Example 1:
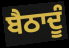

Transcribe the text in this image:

ਬੈਠਾਦੂੰ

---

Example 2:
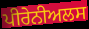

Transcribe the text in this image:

ਪੀਰੇਨੀਅਲਸ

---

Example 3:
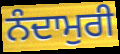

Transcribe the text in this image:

ਨੰਦਾਮੁਰੀ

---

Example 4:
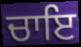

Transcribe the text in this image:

ਚਾਇ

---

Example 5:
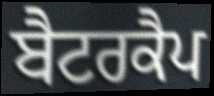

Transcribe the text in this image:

ਬੈਟਰਕੈਪ